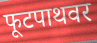
फूटपाथवर